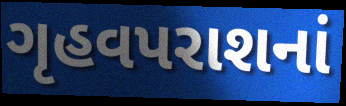
ગૃહવપરાશનાં